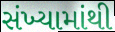
સંખ્યામાંથી